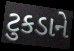
ટુકડાને